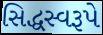
સિદ્ધસ્વરૂપે